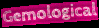
Gemological